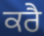
ਕਰੈ